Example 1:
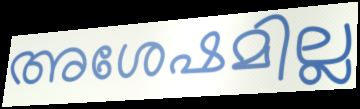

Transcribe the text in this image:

അശേഷമില്ല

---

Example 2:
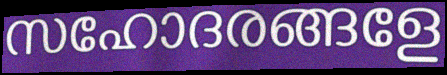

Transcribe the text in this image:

സഹോദരങ്ങളേ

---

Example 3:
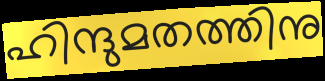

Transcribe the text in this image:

ഹിന്ദുമതത്തിനു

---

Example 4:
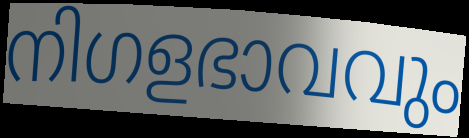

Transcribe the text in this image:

നിഗളഭാവവും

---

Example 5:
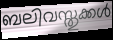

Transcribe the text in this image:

ബലിവസ്തുക്കൾ